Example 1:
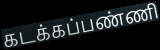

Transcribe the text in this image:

கடக்கப்பண்ணி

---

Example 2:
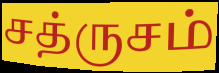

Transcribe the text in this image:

சத்ருசம்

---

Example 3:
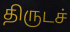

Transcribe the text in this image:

திருடச்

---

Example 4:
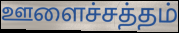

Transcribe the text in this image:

ஊளைச்சத்தம்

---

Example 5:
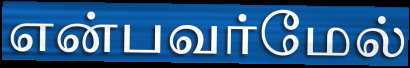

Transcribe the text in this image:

என்பவர்மேல்